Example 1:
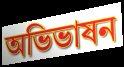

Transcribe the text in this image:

অভিভাষন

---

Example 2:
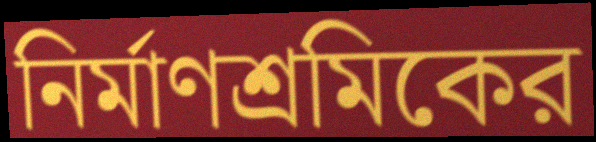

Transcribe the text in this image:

নির্মাণশ্রমিকের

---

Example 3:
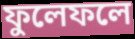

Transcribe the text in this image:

ফুলেফলে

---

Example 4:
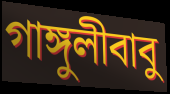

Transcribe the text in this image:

গাঙ্গুলীবাবু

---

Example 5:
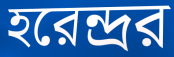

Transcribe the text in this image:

হরেন্দ্রর